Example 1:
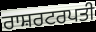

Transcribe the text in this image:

ਰਾਸ਼ਰਟਰਪਤੀ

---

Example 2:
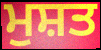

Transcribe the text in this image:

ਮੁਸ਼ਤ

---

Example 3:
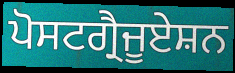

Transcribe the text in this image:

ਪੋਸਟਗ੍ਰੈਜੂਏਸ਼ਨ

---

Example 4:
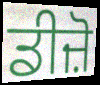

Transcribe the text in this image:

ਡੀਜ਼ੋ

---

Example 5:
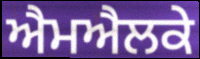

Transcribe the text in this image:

ਐਮਐਲਕੇ